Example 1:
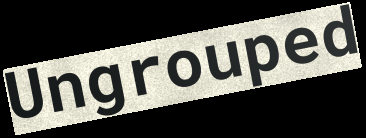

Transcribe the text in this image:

Ungrouped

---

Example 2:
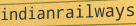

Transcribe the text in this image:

indianrailways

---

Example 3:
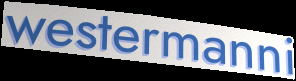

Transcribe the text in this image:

westermanni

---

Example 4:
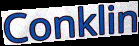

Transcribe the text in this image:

Conklin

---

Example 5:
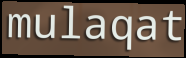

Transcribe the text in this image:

mulaqat